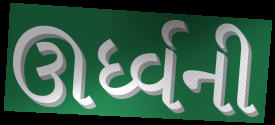
ઊર્ધ્વની